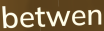
betwen